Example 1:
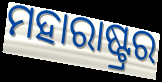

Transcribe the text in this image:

ମହାରାଷ୍ଟ୍ରର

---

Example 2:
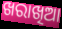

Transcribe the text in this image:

ଖରାଖିଆ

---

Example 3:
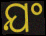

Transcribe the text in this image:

ଯଂ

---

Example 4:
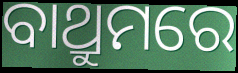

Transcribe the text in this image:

ବାଥ୍ରୁମରେ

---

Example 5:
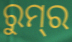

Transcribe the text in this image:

ରୁମ୍‌ର